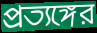
প্রত্যঙ্গের